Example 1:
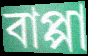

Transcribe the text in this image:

বাপ্পা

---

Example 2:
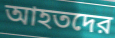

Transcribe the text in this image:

আহতদের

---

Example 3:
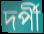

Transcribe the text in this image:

দর্পী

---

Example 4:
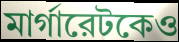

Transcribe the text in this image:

মার্গারেটকেও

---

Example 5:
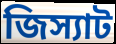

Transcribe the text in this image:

জিস্যাট